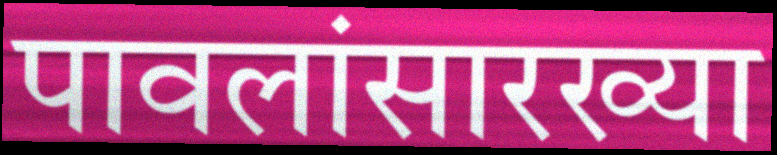
पावलांसारख्या